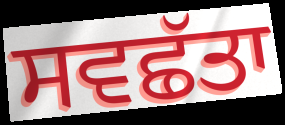
ਸਵਛੱਤਾ